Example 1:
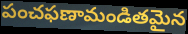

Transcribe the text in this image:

పంచఫణామండితమైన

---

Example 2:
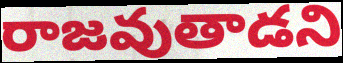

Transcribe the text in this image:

రాజవుతాడని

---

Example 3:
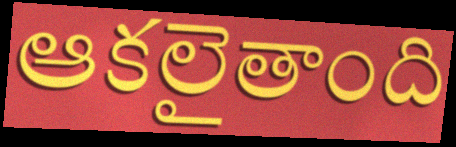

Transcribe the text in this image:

ఆకలైతాంది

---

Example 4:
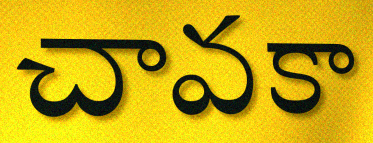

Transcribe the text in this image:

చావకా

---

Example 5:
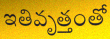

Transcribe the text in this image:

ఇతివృత్తంతో